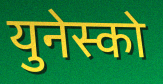
युनेस्को